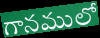
గానములో